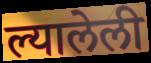
ल्यालेली